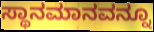
ಸ್ಥಾನಮಾನವನ್ನೂ